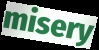
misery